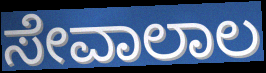
ಸೇವಾಲಾಲ